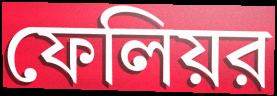
ফেলিয়র